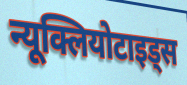
न्यूक्लियोटाइड्स